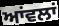
ਆਂਵਲਾਂ